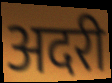
अदरी